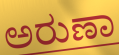
ಅರುಣಾ